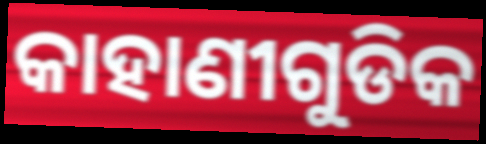
କାହାଣୀଗୁଡିକ